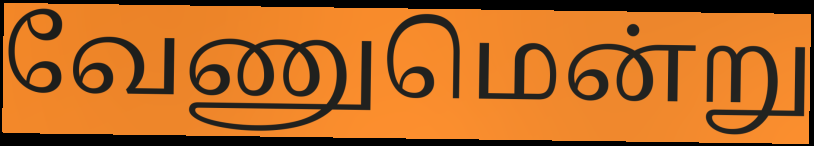
வேணுமென்று